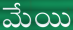
మేయి